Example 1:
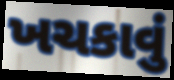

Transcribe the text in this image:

ખચકાવું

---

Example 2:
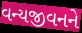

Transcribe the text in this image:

વન્યજીવનને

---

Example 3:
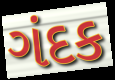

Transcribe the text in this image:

ગંદક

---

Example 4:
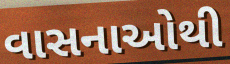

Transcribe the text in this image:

વાસનાઓથી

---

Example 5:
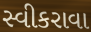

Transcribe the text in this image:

સ્વીકરાવા